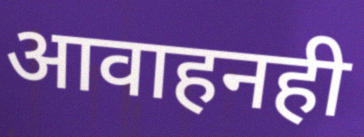
आवाहनही